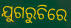
ଯୁଗରୁଚିରେ